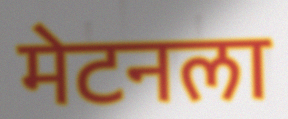
मेटनला